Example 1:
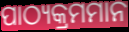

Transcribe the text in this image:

ପାଠ୍ୟକ୍ରମମାନ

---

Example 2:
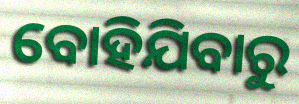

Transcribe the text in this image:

ବୋହିଯିବାରୁ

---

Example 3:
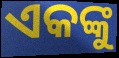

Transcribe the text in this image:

ଏକଙ୍କୁ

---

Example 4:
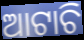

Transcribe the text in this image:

ଆଟାଚି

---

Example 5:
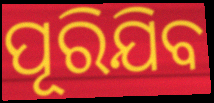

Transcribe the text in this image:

ପୂରିଯିବ